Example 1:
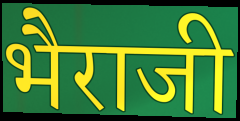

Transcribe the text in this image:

भैराजी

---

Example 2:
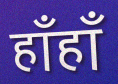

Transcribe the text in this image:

हाँहाँ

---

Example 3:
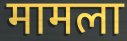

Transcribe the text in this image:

मामला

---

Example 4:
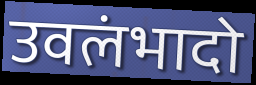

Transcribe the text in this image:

उवलंभादो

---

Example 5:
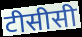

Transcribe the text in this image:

टीसीसी